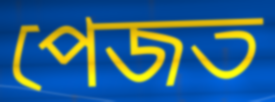
পেজত